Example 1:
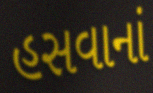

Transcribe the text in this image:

હસવાનાં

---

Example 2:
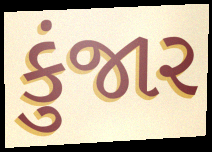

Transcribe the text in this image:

કુંજાર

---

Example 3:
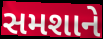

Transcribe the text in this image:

સમશાને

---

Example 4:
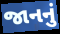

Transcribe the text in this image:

જાનનું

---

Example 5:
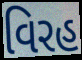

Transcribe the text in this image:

વિરહ